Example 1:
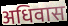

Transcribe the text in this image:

अधिवास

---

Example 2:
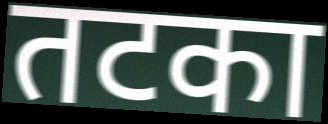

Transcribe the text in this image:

तटका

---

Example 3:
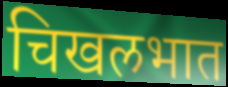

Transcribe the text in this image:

चिखलभात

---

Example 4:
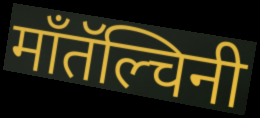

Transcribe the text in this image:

माँतॅल्चिनी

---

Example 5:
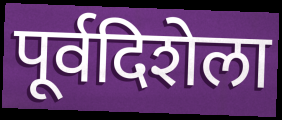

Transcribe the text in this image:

पूर्वदिशेला